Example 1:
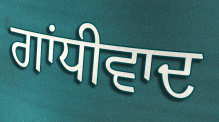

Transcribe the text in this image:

ਗਾਂਧੀਵਾਦ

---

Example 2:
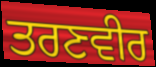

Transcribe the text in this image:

ਤਰਣਵੀਰ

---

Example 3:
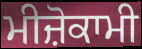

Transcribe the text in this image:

ਮੀਜ਼ੋਕਾਮੀ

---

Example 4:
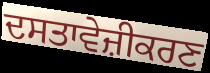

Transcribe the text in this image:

ਦਸਤਾਵੇਜ਼ੀਕਰਣ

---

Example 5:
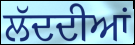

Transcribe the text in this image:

ਲੱਦਦੀਆਂ